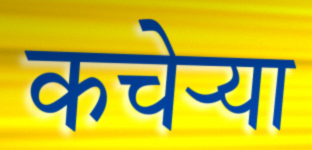
कचेऱ्या